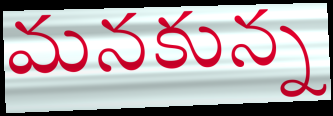
మనకున్న